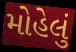
મોહેલું